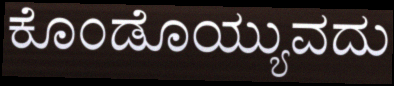
ಕೊಂಡೊಯ್ಯುವದು